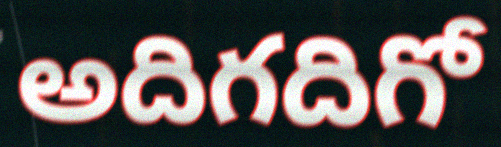
అదిగదిగో